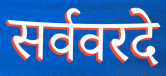
सर्ववरदे